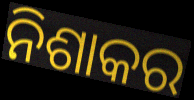
ନିଶାକର